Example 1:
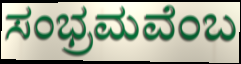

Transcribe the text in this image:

ಸಂಭ್ರಮವೆಂಬ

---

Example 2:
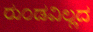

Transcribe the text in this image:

ರುಂಡವಿಲ್ಲದ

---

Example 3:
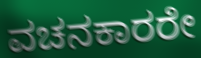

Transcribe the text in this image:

ವಚನಕಾರರೇ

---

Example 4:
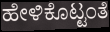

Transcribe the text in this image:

ಹೇಳಿಕೊಟ್ಟಂತೆ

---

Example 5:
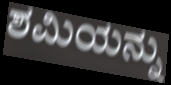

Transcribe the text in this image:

ಶಮಿಯನ್ನು